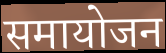
समायोजन